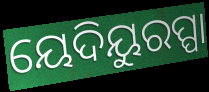
ୟେଦିୟୁରପ୍ପା